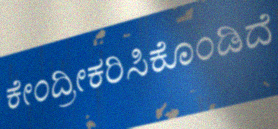
ಕೇಂದ್ರೀಕರಿಸಿಕೊಂಡಿದೆ